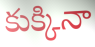
కుక్కినా